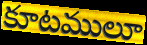
కూటములూ